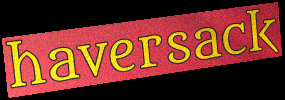
haversack